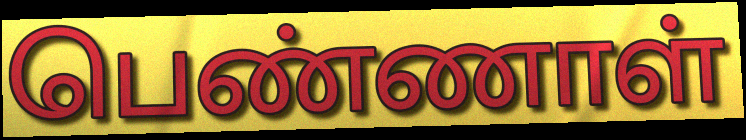
பெண்ணாள்